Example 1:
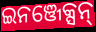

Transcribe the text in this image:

ଇନଞ୍ଜେକ୍ସନ୍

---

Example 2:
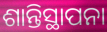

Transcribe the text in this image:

ଶାନ୍ତିସ୍ଥାପନା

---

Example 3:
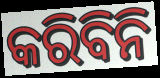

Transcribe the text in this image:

କରିବିନି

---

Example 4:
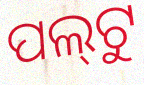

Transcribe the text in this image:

ପଲ୍‍ଟୁ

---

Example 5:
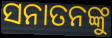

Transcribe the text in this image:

ସନାତନଙ୍କୁ